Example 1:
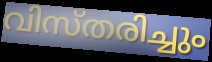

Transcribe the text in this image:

വിസ്തരിച്ചും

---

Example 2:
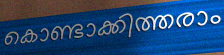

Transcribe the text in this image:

കൊണ്ടാക്കിത്തരാം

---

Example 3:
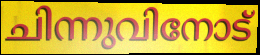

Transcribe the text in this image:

ചിന്നുവിനോട്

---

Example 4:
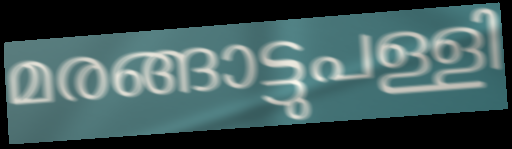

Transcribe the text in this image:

മരങ്ങാട്ടുപള്ളി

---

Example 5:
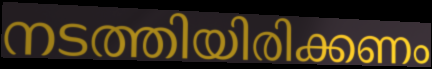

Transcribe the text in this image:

നടത്തിയിരിക്കണം